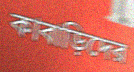
কাবাড়িদের